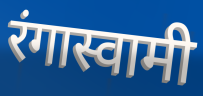
रंगास्वामी